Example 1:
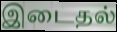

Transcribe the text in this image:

இடைதல்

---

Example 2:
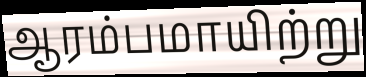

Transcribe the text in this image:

ஆரம்பமாயிற்று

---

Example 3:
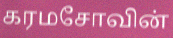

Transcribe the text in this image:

கரமசோவின்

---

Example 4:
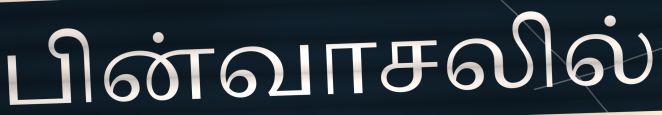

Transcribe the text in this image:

பின்வாசலில்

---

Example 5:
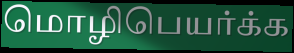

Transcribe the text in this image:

மொழிபெயர்க்க